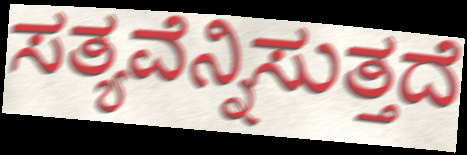
ಸತ್ಯವೆನ್ನಿಸುತ್ತದೆ